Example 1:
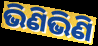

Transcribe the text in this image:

ଭିଣିଭିଣି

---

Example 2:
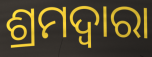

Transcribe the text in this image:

ଶ୍ରମଦ୍ୱାରା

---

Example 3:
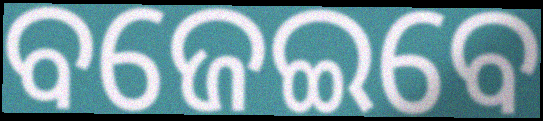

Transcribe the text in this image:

ବଜେଇବେ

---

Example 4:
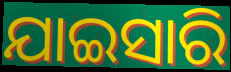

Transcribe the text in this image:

ଯାଇସାରି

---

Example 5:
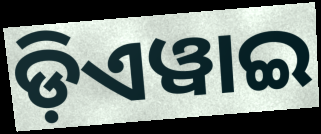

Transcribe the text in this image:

ଡ଼ିଏୱାଇ